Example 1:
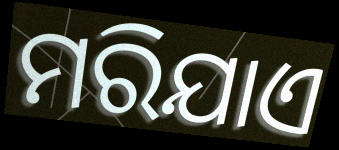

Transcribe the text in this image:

ମରିଯାଏ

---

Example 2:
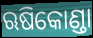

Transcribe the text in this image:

ଋଷିକୋଣ୍ଡା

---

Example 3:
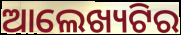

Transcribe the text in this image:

ଆଲେଖ୍ୟଟିର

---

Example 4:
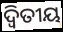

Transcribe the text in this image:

ଦ୍ୱିତୀୟ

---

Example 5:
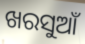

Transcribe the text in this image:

ଖରସୁଆଁ